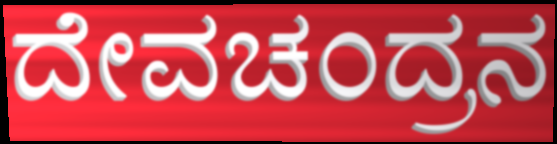
ದೇವಚಂದ್ರನ